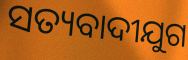
ସତ୍ୟବାଦୀଯୁଗ